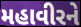
મહાવીરને